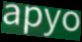
apyo